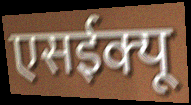
एसईक्यू